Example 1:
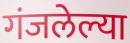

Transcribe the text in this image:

गंजलेल्या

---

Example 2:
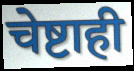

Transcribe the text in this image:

चेष्टाही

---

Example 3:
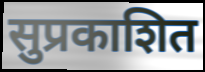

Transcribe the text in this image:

सुप्रकाशित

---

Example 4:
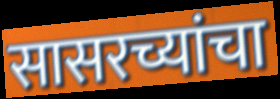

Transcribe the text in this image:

सासरच्यांचा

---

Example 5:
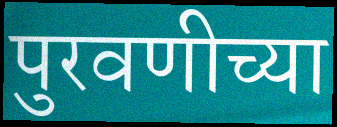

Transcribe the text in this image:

पुरवणीच्या